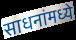
साधनांमध्ये